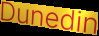
Dunedin